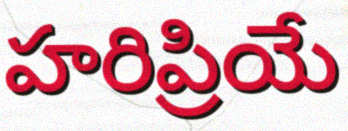
హరిప్రియే